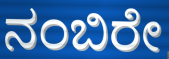
ನಂಬಿರೇ